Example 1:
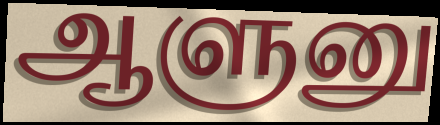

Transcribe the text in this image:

ஆளுனு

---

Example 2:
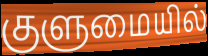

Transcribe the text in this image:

குளுமையில்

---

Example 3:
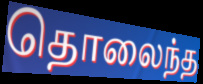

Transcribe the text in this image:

தொலைந்த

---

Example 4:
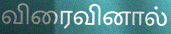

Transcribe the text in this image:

விரைவினால்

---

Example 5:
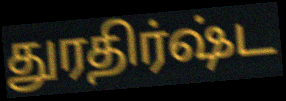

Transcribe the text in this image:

துரதிர்ஷ்ட